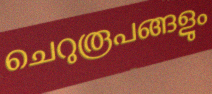
ചെറുരൂപങ്ങളും